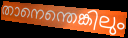
താനെന്തെങ്കിലും